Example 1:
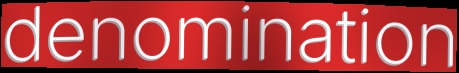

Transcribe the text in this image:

denomination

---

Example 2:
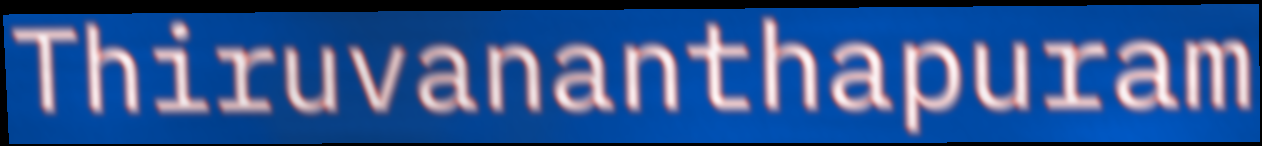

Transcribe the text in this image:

Thiruvananthapuram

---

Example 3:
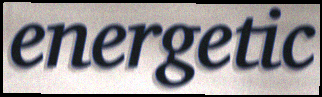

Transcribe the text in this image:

energetic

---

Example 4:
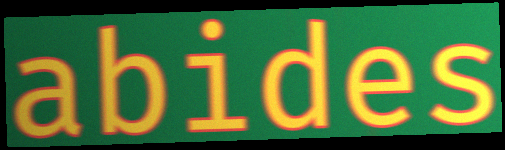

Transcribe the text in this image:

abides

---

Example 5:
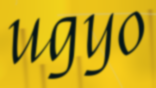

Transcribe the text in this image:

ugyo